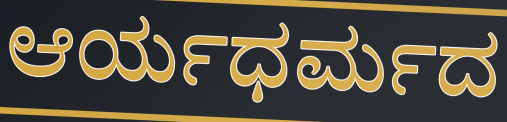
ಆರ್ಯಧರ್ಮದ